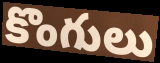
కొంగులు